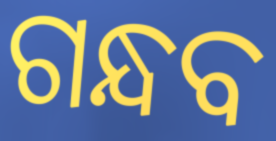
ଗନ୍ଧବ